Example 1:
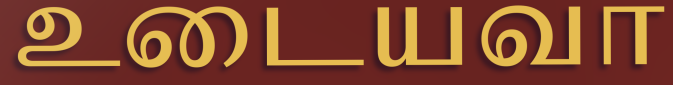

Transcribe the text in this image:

உடையவா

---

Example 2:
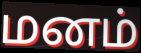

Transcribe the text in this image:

மனம்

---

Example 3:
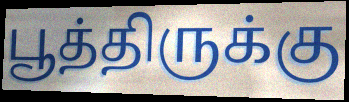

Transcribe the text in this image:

பூத்திருக்கு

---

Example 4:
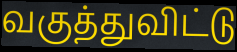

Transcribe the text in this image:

வகுத்துவிட்டு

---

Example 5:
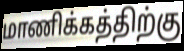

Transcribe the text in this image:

மாணிக்கத்திற்கு